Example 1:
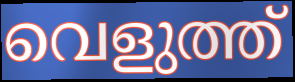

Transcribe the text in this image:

വെളുത്ത്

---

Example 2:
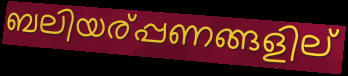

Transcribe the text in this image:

ബലിയര്പ്പണങ്ങളില്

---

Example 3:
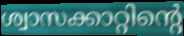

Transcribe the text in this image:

ശ്വാസക്കാറ്റിന്റെ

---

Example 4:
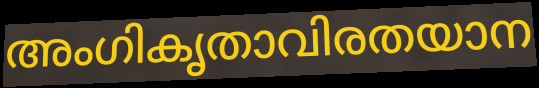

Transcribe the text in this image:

അംഗികൃതാവിരതയാന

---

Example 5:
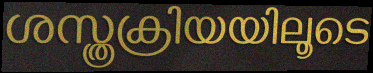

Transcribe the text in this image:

ശസ്ത്രക്രിയയിലൂടെ